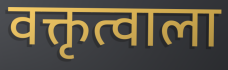
वक्तृत्वाला